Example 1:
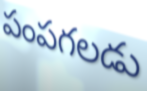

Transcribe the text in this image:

పంపగలడు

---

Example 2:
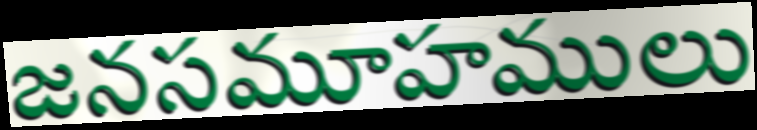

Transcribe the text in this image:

జనసమూహములు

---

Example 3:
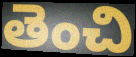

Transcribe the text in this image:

తెంచి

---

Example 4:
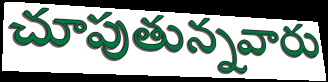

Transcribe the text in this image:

చూపుతున్నవారు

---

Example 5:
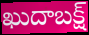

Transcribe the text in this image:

ఖుదాబక్ష్